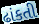
ઢાંકતી